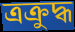
ত্রক্রুদ্ধ